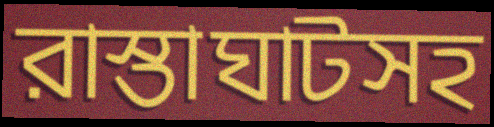
রাস্তাঘাটসহ